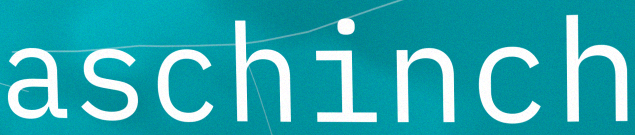
aschinch